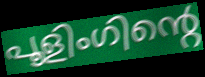
പൂളിംഗിന്റെ